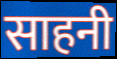
साहनी